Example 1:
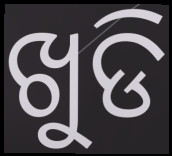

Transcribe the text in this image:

ଖୁଡି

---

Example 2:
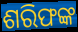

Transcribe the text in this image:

ଶରିଫଙ୍କ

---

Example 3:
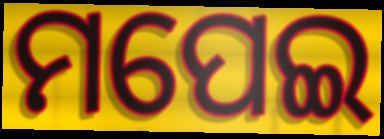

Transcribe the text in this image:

ମପେଇ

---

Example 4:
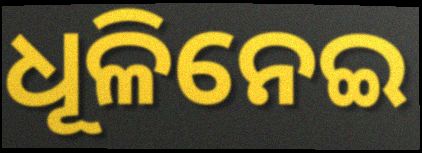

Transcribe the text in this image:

ଧୂଳିନେଇ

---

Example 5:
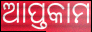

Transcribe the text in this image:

ଆପ୍ତକାମ